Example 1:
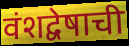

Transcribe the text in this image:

वंशद्वेषाची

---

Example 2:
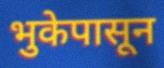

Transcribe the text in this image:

भुकेपासून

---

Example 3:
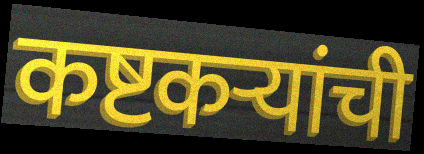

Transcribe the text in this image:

कष्टकऱ्यांची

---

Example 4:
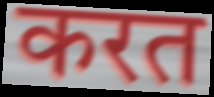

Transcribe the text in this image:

करत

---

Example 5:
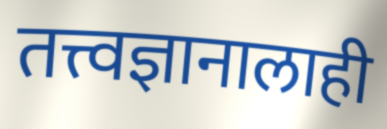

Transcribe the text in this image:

तत्त्वज्ञानालाही